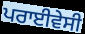
ਪਰਾਈਵੇਸੀ